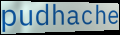
pudhache